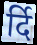
र्दि